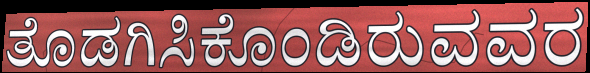
ತೊಡಗಿಸಿಕೊಂಡಿರುವವರ